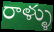
రాళ్ళు